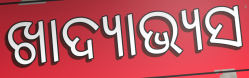
ଖାଦ୍ୟାଭ୍ୟସ